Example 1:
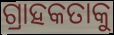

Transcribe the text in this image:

ଗ୍ରାହକତାକୁ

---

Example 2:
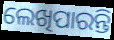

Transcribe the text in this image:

ଲେଖିପାରନ୍ତି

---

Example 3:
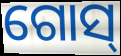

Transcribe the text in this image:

ଗୋସ୍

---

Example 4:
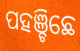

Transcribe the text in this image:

ପହଞ୍ଚିଛେ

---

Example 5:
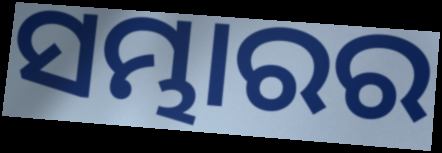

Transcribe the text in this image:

ସମ୍ଭାରର